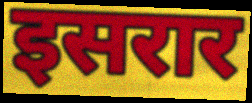
इसरार